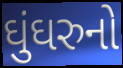
ઘુંઘરુનો